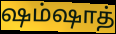
ஷம்ஷாத்